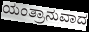
ಯಂತ್ರಾನುವಾದ